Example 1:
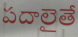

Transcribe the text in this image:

పదాలైతే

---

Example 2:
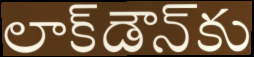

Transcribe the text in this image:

లాక్‌డౌన్‌కు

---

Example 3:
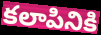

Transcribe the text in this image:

కలాపినికి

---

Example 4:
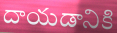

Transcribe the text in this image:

దాయడానికి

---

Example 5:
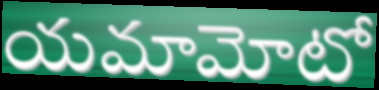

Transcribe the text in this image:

యమామోటో